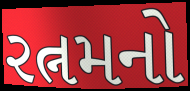
રત્નમનો